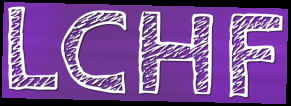
LCHF